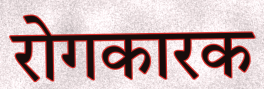
रोगकारक